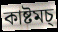
কাষ্টমচ্